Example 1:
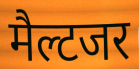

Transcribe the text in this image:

मैल्टजर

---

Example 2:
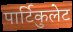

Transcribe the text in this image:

पार्टिकुलेट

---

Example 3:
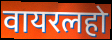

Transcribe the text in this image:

वायरलहो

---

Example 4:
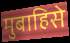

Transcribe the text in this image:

मुबाहिसे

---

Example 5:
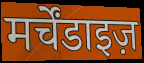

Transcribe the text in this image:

मर्चेंडाइज़